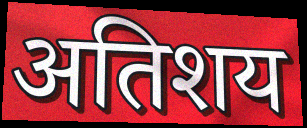
अतिशय